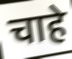
चाहे